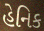
હેનિક